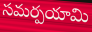
సమర్పయామి